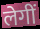
लेगीं